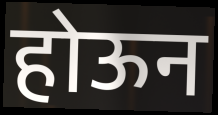
होऊन